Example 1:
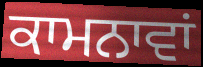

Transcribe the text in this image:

ਕਾਮਨਾਵਾਂ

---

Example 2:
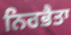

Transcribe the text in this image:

ਨਿਰਭੈਤਾ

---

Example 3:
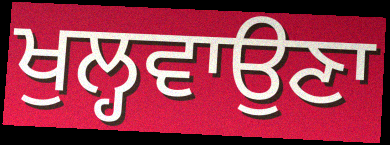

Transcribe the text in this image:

ਖੁਲ੍ਹਵਾਉਣਾ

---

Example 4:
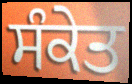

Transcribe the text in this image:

ਸੰਕੇਤ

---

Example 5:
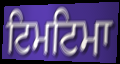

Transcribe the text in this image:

ਟਿਮਟਿਮਾ